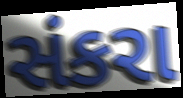
સંકરા